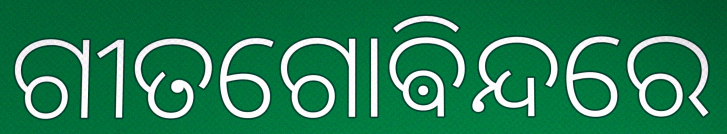
ଗୀତଗୋଵିନ୍ଦରେ